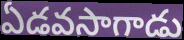
ఏడవసాగాడు